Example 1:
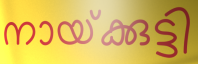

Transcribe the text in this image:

നായ്‌ക്കുട്ടി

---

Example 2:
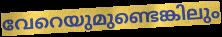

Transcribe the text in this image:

വേറെയുമുണ്ടെങ്കിലും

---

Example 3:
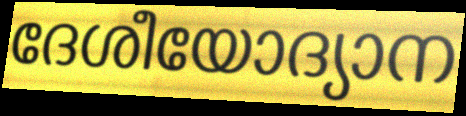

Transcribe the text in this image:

ദേശീയോദ്യാന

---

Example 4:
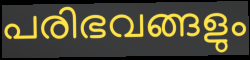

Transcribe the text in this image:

പരിഭവങ്ങളും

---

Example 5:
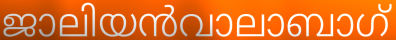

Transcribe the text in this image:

ജാലിയൻവാലാബാഗ്